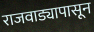
राजवाड्यापासून